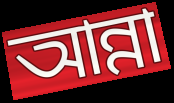
আন্না